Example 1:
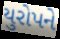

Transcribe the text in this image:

યુરોપને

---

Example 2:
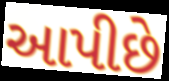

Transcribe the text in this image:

આપીછે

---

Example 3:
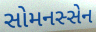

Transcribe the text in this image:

સોમનસ્સેન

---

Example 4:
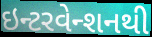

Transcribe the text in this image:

ઇન્ટરવેન્શનથી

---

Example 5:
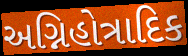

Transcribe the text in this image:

અગ્નિહોત્રાદિક